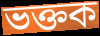
ভক্তক